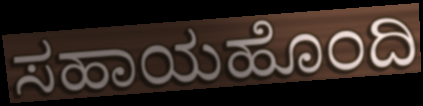
ಸಹಾಯಹೊಂದಿ